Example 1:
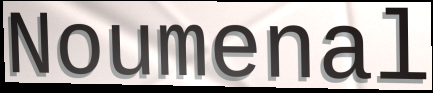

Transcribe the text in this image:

Noumenal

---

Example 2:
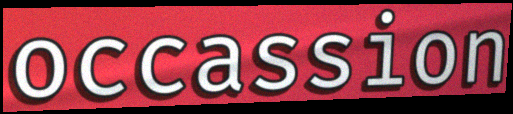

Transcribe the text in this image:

occassion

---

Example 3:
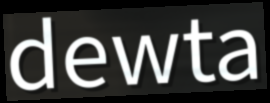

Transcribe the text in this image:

dewta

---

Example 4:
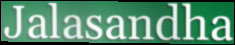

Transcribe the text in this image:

Jalasandha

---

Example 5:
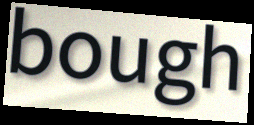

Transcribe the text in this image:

bough